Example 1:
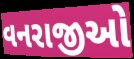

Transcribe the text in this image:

વનરાજીઓ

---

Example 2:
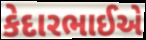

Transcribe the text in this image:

કેદારભાઈએ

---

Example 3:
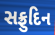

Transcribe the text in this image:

સફ્રુદિન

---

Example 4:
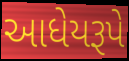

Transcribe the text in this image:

આધેયરૂપે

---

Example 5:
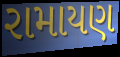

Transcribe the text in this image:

રામાયણ